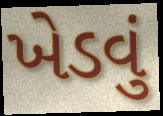
ખેડવું